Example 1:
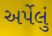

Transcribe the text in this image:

અર્પેલું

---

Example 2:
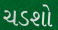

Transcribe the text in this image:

ચડશો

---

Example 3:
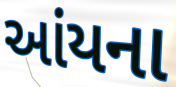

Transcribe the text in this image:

આંયના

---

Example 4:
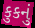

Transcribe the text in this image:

કુકનું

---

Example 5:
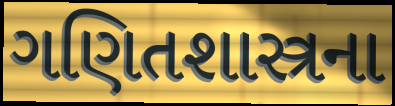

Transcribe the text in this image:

ગણિતશાસ્ત્રના